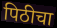
पिठीचा